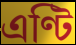
এণ্টি